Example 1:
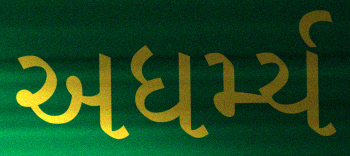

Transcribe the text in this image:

અધર્મ્ય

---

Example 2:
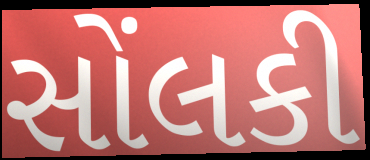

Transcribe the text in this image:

સોંલકી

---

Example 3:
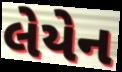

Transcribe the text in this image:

લેયેન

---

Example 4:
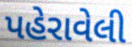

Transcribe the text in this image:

પહેરાવેલી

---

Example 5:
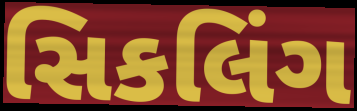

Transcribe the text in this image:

સિકલિંગ